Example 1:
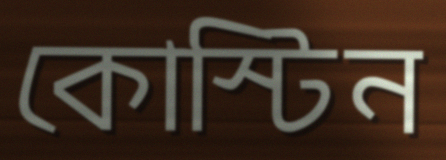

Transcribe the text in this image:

কোস্টিন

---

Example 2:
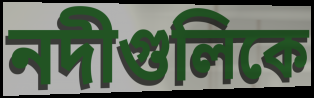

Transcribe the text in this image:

নদীগুলিকে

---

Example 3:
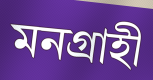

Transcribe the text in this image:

মনগ্রাহী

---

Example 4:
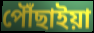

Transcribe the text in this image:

পৌঁছাইয়া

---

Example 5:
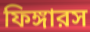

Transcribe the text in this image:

ফিঙ্গারস